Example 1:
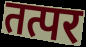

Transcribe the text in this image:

तत्पर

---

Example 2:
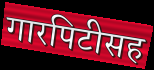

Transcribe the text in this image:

गारपिटीसह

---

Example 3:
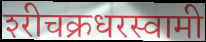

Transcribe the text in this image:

श्रीचक्रधरस्वामी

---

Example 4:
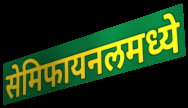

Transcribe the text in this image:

सेमिफायनलमध्ये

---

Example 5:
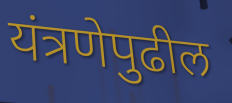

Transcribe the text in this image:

यंत्रणेपुढील